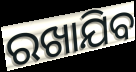
ରଖାଯିବ